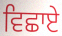
ਵਿਛਾਏ